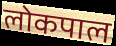
लोकपाल